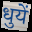
धुयें